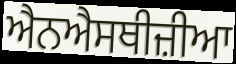
ਐਨਐਸਥੀਜ਼ੀਆ